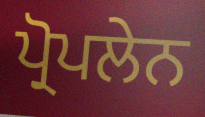
ਪ੍ਰੋਪਲੇਨ